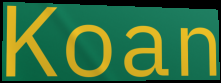
Koan